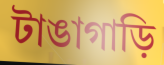
টাঙাগাড়ি